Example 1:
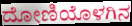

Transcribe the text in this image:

ದೋಣಿಯೊಳಗಿನ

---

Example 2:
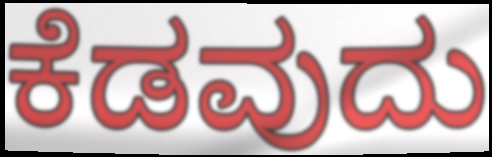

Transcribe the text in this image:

ಕೆಡವುದು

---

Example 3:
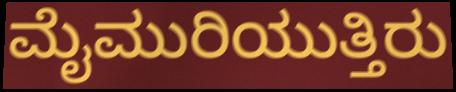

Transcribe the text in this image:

ಮೈಮುರಿಯುತ್ತಿರು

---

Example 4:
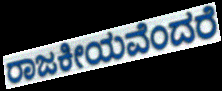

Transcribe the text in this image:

ರಾಜಕೀಯವೆಂದರೆ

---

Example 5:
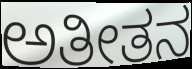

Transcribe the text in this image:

ಅತೀತನ